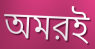
অমরই